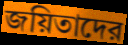
জয়িতাদের